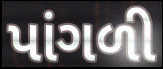
પાંગળી